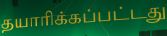
தயாரிக்கப்பட்டது